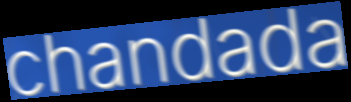
chandada